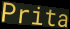
Prita